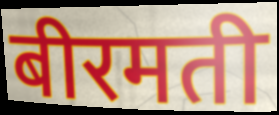
बीरमती